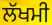
ਲੱਖਮੀ